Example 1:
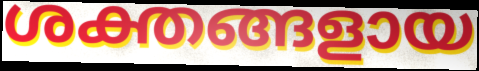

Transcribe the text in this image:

ശക്തങ്ങളായ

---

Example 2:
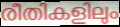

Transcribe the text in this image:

രീതികളിലും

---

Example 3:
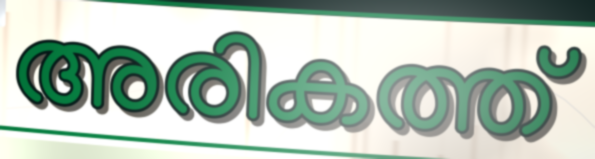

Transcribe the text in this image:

അരികത്ത്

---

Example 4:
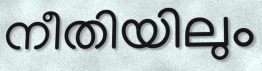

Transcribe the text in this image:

നീതിയിലും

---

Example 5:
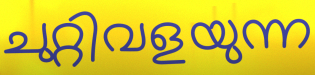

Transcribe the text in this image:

ചുറ്റിവളയുന്ന